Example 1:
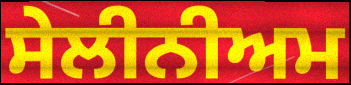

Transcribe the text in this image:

ਸੇਲੀਨੀਅਮ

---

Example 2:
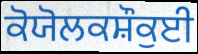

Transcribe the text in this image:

ਕੋਯੋਲਕਸ਼ੌਕੁਈ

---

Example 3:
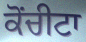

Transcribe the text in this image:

ਕੋਂਚੀਟਾ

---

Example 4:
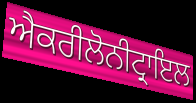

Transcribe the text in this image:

ਐਕਰੀਲੋਨੀਟ੍ਰਾਇਲ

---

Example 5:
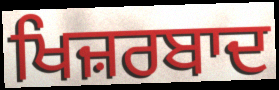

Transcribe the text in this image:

ਖਿਜ਼ਰਬਾਦ